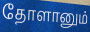
தோளானும்